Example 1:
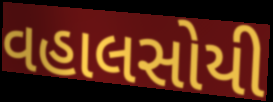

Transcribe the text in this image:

વહાલસોયી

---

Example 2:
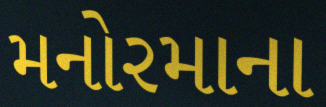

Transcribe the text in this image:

મનોરમાના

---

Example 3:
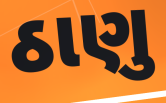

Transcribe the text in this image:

ઠાણુ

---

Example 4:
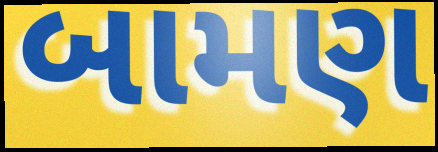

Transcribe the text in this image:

બામણ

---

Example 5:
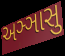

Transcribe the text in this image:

અઞ્ઞાસુ